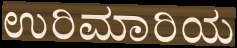
ಉರಿಮಾರಿಯ